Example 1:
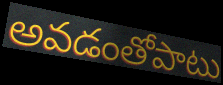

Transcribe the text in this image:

అవడంతోపాటు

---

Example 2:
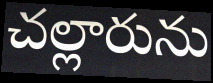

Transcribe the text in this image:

చల్లారును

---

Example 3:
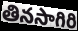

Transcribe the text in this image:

తినసాగిరి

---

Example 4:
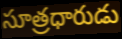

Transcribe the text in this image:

సూత్రధారుడు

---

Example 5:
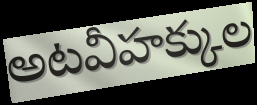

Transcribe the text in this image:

అటవీహక్కుల